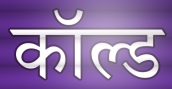
कॉल्ड